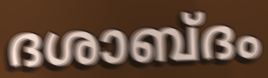
ദശാബ്ദം